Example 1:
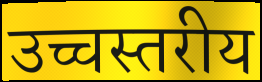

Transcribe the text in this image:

उच्चस्तरीय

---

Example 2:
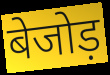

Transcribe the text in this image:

बेजोड़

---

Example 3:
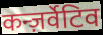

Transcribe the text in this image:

कन्ज़र्वेटिव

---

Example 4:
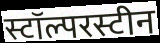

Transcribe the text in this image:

स्टॉल्परस्टीन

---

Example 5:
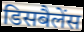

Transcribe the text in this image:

डिसबैलेंस